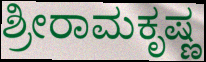
ಶ್ರೀರಾಮಕೃಷ್ಣ